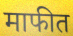
माफीत